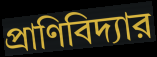
প্রাণিবিদ্যার